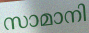
സാമാനി